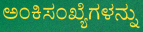
ಅಂಕಿಸಂಖ್ಯೆಗಳನ್ನು